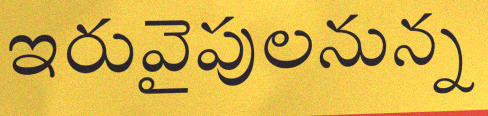
ఇరువైపులనున్న